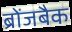
ब्रोंजबैक